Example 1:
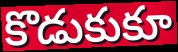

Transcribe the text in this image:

కొడుకుకూ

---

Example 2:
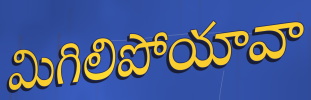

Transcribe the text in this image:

మిగిలిపోయావా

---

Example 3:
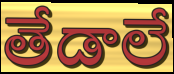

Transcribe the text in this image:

తేడాలే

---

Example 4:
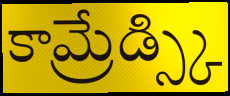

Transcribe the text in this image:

కామ్రేడ్స్కి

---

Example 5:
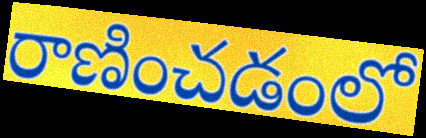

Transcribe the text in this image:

రాణించడంలో